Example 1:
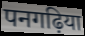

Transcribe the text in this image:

पनगढ़िया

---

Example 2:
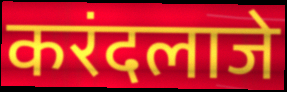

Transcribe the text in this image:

करंदलाजे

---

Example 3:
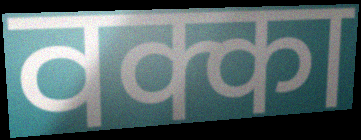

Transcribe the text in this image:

वक्का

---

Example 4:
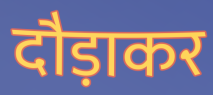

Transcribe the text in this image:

दौड़ाकर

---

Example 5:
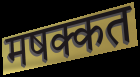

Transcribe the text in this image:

मषक्कत